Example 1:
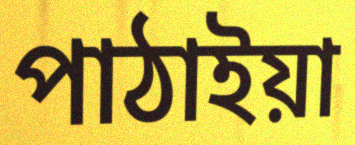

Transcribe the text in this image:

পাঠাইয়া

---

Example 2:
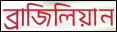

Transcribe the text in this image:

ব্রাজিলিয়ান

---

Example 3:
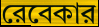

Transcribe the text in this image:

রেবেকার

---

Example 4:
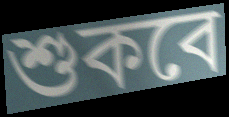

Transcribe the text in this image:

শুকবে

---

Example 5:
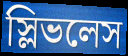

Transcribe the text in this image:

স্লিভলেস